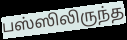
பஸ்ஸிலிருந்த